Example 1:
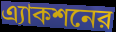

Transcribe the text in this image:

এ্যাকশনের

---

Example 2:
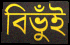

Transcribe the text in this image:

বিভুঁই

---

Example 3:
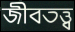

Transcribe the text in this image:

জীবতত্ত্ব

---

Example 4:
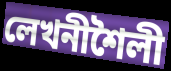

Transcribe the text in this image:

লেখনীশৈলী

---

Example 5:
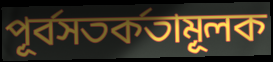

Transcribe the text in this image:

পূর্বসতর্কতামূলক